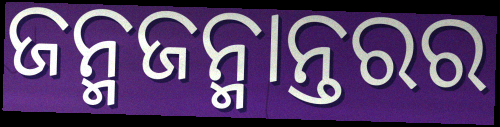
ଜନ୍ମଜନ୍ମାନ୍ତରର